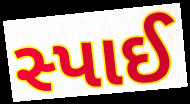
સ્પાઈ